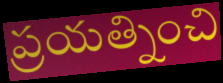
ప్రయత్నించి